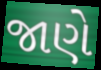
જાણે